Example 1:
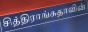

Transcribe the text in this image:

சித்திராங்கதாவின்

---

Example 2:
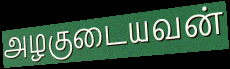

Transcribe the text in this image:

அழகுடையவன்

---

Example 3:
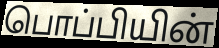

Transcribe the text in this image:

பொப்பியின்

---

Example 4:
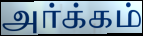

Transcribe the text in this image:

அர்க்கம்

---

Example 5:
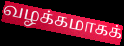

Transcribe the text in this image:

வழக்கமாகக்